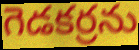
గెడకర్రను